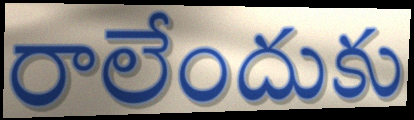
రాలేందుకు